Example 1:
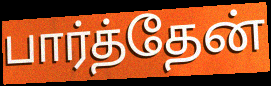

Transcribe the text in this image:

பார்த்தேன்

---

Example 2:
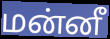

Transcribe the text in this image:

மன்னீ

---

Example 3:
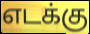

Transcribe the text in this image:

எடக்கு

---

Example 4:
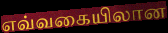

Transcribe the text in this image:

எவ்வகையிலான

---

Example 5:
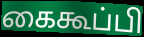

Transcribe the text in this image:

கைகூப்பி